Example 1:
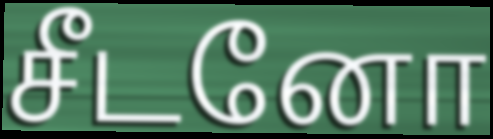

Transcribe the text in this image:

சீடனோ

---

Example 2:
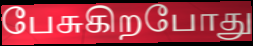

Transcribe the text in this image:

பேசுகிறபோது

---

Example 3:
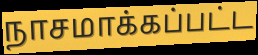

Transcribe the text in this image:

நாசமாக்கப்பட்ட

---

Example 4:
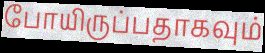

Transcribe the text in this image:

போயிருப்பதாகவும்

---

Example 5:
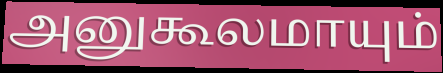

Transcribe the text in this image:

அனுகூலமாயும்